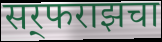
सर्फराझचा